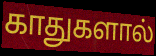
காதுகளால்